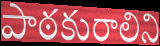
పాఠకురాలిని